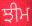
ਝੀਮ